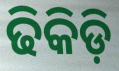
ଢିକିଡ଼ି